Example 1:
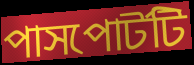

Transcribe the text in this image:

পাসপোর্টটি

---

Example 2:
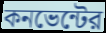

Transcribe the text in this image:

কনভেন্টের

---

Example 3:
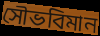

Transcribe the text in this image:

সৌভবিমান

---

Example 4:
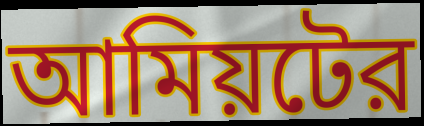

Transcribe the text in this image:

আমিয়টের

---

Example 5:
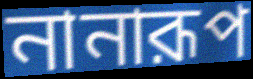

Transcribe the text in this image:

নানারূপ